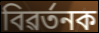
বিৱৰ্তনক